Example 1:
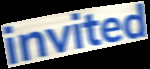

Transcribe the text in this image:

invited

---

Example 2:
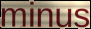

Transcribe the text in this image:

minus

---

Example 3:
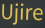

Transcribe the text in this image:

Ujire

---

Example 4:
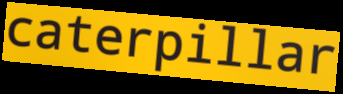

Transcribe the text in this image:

caterpillar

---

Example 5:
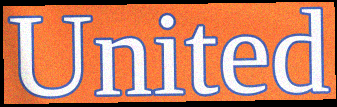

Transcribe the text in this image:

United